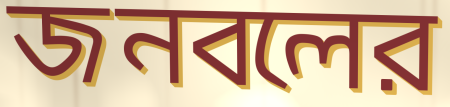
জনবলের